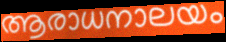
ആരാധനാലയം